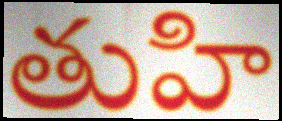
తుహి